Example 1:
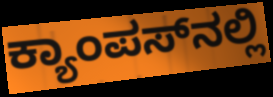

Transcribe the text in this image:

ಕ್ಯಾಂಪಸ್‌ನಲ್ಲಿ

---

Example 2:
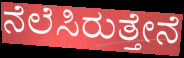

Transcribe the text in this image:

ನೆಲೆಸಿರುತ್ತೇನೆ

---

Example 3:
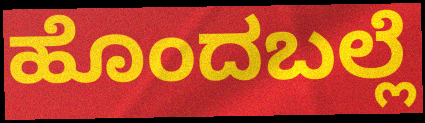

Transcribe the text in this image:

ಹೊಂದಬಲ್ಲೆ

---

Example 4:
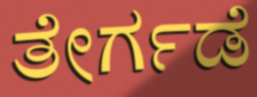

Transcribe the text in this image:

ತೇರ್ಗಡೆ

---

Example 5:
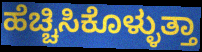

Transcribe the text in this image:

ಹೆಚ್ಚಿಸಿಕೊಳ್ಳುತ್ತಾ